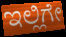
ಇಲ್ಲಿಗೇ